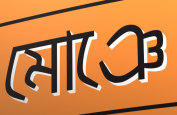
মোঞে